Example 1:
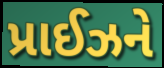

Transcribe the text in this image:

પ્રાઈઝને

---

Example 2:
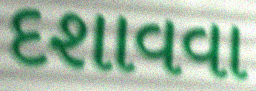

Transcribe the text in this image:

દશાવવા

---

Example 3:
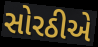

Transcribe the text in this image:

સોરઠીએ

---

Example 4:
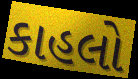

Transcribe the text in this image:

કાહલો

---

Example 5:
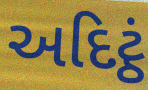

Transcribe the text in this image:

અદિટ્ઠં